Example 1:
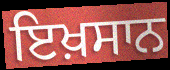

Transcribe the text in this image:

ਇਖ਼ਸਾਨ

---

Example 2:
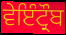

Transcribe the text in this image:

ਵੇਇੰਟ੍ਰੌਬ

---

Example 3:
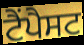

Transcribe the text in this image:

ਟੈਂਪੈਸਟ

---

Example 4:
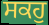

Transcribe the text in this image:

ਸਕਹੁ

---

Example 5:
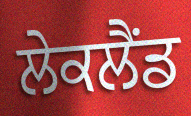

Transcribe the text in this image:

ਲੇਕਲੈਂਡ